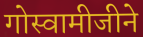
गोस्वामीजीने